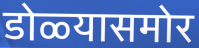
डोळ्यासमोर